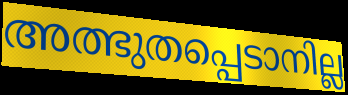
അത്ഭുതപ്പെടാനില്ല